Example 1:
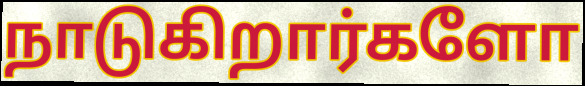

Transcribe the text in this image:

நாடுகிறார்களோ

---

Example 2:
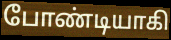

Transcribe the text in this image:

போண்டியாகி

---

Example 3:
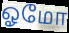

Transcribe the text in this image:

ஓமோ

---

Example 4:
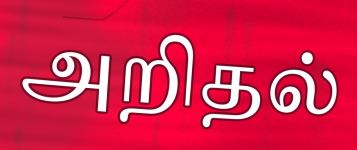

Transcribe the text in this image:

அறிதல்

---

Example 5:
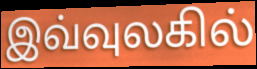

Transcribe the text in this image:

இவ்வுலகில்